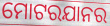
ମୋଟରଯାନର